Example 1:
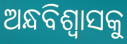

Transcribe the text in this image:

ଅନ୍ଧବିଶ୍ୱାସକୁ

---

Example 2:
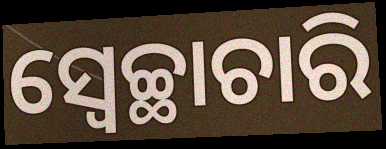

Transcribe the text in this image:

ସ୍ଵେଚ୍ଛାଚାରି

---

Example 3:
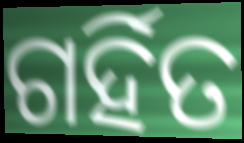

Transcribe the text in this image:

ଗର୍ହିତ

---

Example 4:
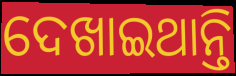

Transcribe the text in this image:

ଦେଖାଇଥାନ୍ତି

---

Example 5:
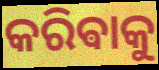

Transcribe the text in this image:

କରିଵାକୁ